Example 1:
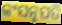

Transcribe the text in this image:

କଂସନୃପତି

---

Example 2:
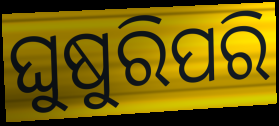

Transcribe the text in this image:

ଘୁଷୁରିପରି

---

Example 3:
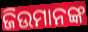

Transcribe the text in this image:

ଜିଉମାନଙ୍କ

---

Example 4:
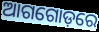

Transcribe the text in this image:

ଆଗଗୋଡ଼ରେ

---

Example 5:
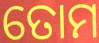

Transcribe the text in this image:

ତୋମ